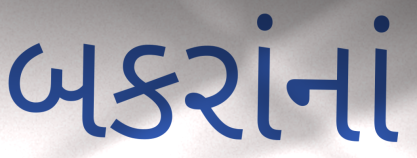
બકરાંનાં